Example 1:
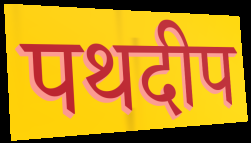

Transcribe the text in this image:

पथदीप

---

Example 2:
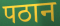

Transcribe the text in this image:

पठान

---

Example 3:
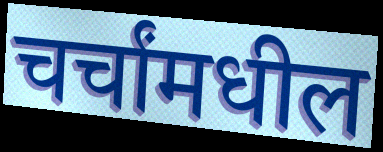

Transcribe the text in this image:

चर्चांमधील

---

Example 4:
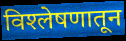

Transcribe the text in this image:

विश्लेषणातून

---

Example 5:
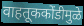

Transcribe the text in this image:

वाहतूककोंडीमुळे